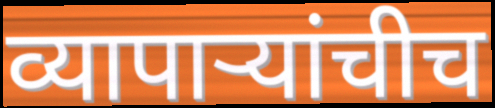
व्यापाऱ्यांचीच